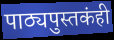
पाठ्यपुस्तकंही